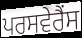
ਪਰਸਵੇਰੈਂਸ